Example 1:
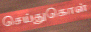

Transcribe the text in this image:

செய்துகொள்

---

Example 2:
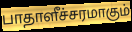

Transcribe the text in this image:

பாதாளீச்சரமாகும்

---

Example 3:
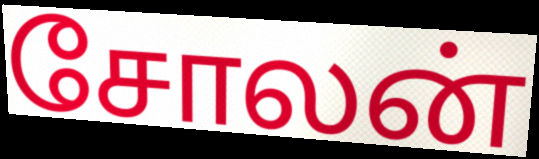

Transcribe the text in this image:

சோலன்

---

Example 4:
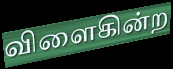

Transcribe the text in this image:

விளைகின்ற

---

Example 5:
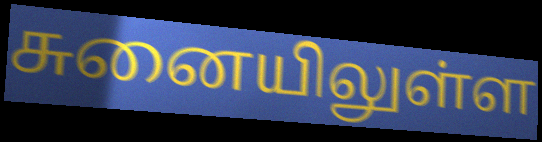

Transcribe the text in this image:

சுனையிலுள்ள